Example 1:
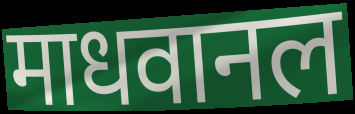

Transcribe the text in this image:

माधवानल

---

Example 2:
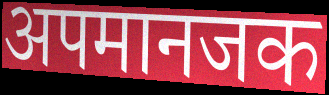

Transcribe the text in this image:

अपमानजक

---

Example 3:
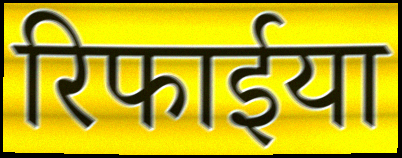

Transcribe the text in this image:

रिफाईया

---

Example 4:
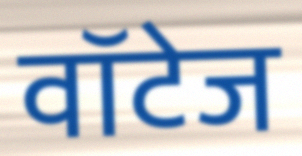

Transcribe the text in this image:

वॉटेज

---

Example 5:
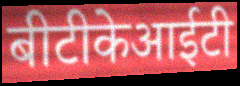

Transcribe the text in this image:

बीटीकेआईटी